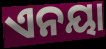
ଏନୟା